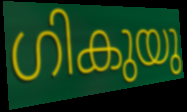
ഗികുയു